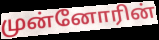
முன்னோரின்